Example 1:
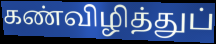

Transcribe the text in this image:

கண்விழித்துப்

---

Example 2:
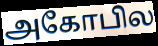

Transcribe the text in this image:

அகோபில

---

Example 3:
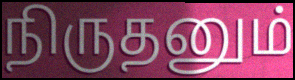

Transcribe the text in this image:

நிருதனும்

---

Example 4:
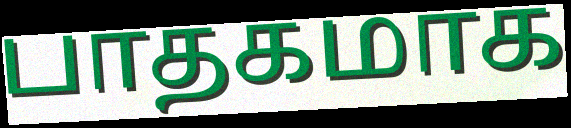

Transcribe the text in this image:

பாதகமாக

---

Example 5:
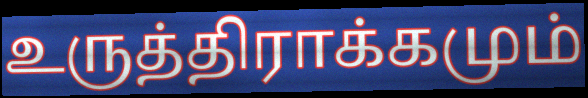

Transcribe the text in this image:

உருத்திராக்கமும்